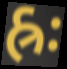
હ્રઃ